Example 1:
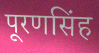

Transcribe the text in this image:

पूरणसिंह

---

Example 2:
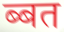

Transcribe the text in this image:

ब्बत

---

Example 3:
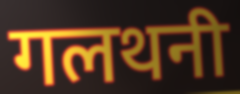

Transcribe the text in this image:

गलथनी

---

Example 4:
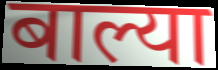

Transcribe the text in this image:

बाल्या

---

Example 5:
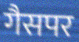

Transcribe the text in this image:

गैसपर